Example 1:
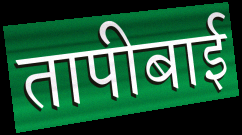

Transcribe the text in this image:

तापीबाई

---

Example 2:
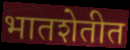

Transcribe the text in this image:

भातशेतीत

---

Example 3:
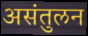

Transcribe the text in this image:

असंतुलन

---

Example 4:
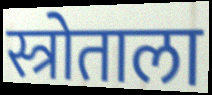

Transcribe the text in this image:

स्त्रोताला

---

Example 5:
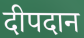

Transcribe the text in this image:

दीपदान